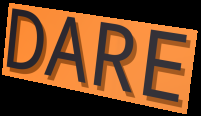
DARE